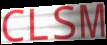
CLSM